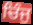
ਚਿੰਜੁ